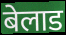
बेलाड